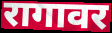
रागावर